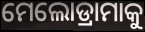
ମେଲୋଡ୍ରାମାକୁ